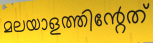
മലയാളത്തിന്റേത്